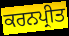
ਕਰਨਪ੍ਰੀਤ